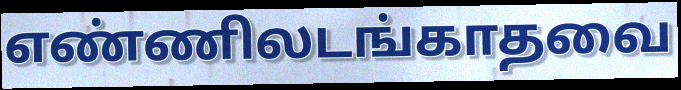
எண்ணிலடங்காதவை